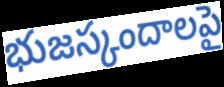
భుజస్కందాలపై